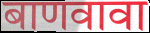
बाणवावा